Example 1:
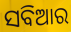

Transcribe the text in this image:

ସବିଆର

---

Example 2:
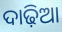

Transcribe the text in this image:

ଦାଢ଼ିଆ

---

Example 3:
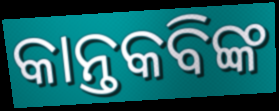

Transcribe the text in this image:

କାନ୍ତକବିଙ୍କ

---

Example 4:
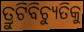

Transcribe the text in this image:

ତ୍ରୁଟିବିଚ୍ୟୁତିକୁ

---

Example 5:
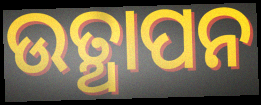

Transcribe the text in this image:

ଉତ୍ଥାପନ